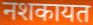
नशकायत